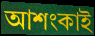
আশংকাই